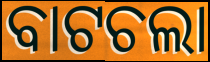
ବାଟଚଲା